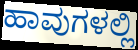
ಹಾವುಗಳಲ್ಲಿ